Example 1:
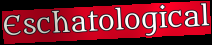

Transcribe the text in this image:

Eschatological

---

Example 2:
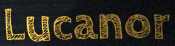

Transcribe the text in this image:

Lucanor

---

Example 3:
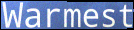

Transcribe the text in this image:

Warmest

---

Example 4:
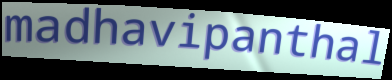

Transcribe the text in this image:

madhavipanthal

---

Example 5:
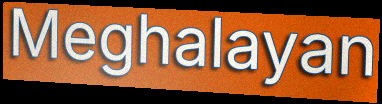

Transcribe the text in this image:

Meghalayan